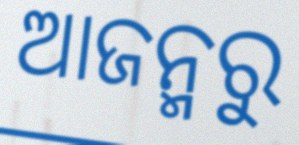
ଆଜନ୍ମରୁ